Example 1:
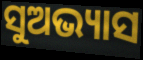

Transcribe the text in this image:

ସୁଅଭ୍ୟାସ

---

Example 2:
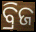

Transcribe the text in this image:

ବ୍ରିଜ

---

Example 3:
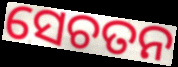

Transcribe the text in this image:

ସେଚତନ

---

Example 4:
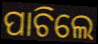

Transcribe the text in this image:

ପାଚିଲେ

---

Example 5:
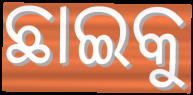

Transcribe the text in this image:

ଛାଇକୁ